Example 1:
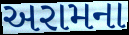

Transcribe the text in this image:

અરામના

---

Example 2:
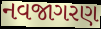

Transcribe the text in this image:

નવજાગરણ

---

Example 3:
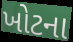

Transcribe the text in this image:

ખોટના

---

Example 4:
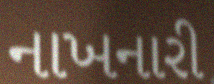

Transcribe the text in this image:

નાખનારી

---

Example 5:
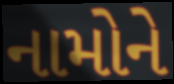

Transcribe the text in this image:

નામોને